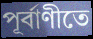
পূর্বাণীতে